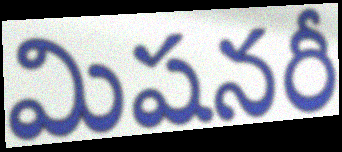
మిషనరీ